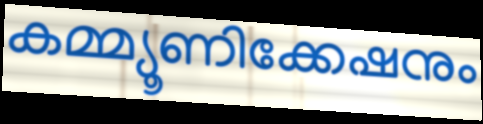
കമ്മ്യൂണിക്കേഷനും